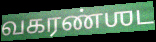
வகரண்ஶட